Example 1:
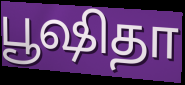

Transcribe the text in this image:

பூஷிதா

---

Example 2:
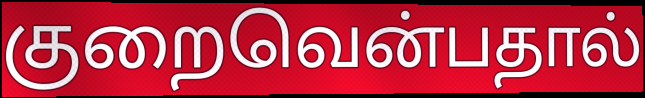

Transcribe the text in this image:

குறைவென்பதால்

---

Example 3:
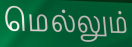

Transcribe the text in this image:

மெல்லும்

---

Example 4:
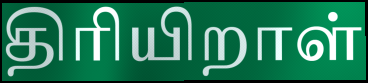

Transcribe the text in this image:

திரியிறாள்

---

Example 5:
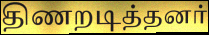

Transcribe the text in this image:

திணறடித்தனர்